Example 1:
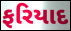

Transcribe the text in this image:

ફરિયાદ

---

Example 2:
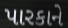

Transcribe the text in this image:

પારકાને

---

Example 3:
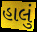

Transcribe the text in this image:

હાલું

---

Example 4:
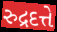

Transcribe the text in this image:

રુદ્રદત્તે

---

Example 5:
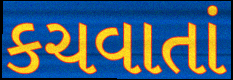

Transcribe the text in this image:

કચવાતાં